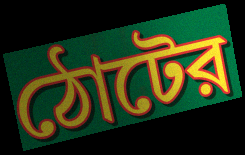
ঠোটের